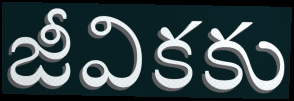
జీవికకు